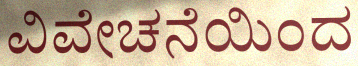
ವಿವೇಚನೆಯಿಂದ